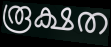
രൂക്ഷത